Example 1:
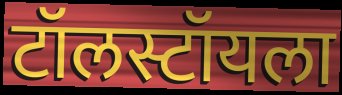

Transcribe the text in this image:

टॉलस्टॉयला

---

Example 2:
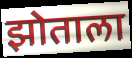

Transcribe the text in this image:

झोताला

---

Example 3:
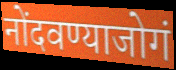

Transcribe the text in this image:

नोंदवण्याजोगं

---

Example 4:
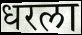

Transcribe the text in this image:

धरला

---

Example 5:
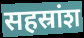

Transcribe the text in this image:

सहस्रांश